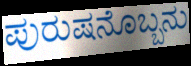
ಪುರುಷನೊಬ್ಬನು